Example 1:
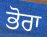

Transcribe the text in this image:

ਭੋਰਾ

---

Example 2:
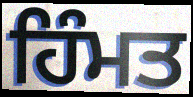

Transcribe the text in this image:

ਹਿੰਮਤ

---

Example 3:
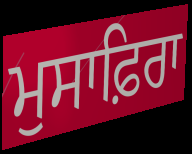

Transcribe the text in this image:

ਮੁਸਾਫ਼ਿਰਾ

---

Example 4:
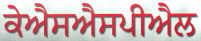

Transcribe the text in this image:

ਕੇਐਸਐਸਪੀਐਲ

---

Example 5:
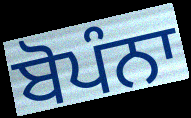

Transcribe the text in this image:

ਬੋਪੰਨਾ